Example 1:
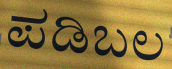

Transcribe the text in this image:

ಪಡಿಬಲ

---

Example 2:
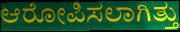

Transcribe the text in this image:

ಆರೋಪಿಸಲಾಗಿತ್ತು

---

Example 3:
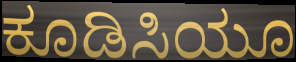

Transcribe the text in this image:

ಕೂಡಿಸಿಯೂ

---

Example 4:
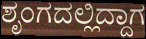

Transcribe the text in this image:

ಶೃಂಗದಲ್ಲಿದ್ದಾಗ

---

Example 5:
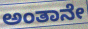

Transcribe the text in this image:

ಅಂತಾನೇ